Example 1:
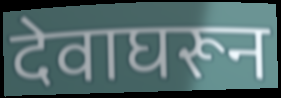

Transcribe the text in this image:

देवाघरून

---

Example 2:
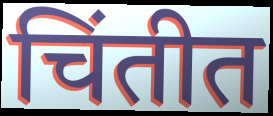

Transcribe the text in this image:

चिंतीत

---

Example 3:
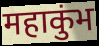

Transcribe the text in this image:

महाकुंभ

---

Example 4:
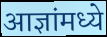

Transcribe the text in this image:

आज्ञांमध्ये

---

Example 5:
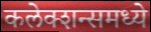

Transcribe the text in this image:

कलेक्शन्समध्ये